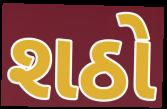
શઠો